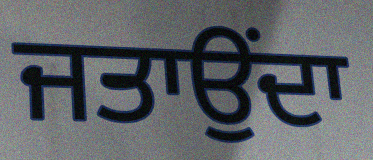
ਜਤਾਉਂਦਾ